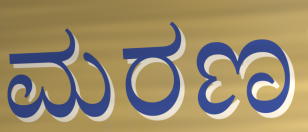
ಮರಣ